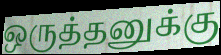
ஒருத்தனுக்கு